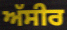
ਅੱਸੀਰ